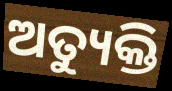
ଅତ୍ୟୁକ୍ତି